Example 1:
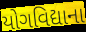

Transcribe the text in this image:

યોગવિદ્યાના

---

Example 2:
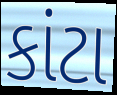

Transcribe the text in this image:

કાંટા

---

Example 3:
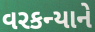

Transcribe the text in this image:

વરકન્યાને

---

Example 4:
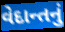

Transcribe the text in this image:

વેદાન્તનું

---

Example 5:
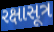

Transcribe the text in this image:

રક્ષાસૂત્ર